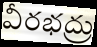
వీరభద్రు